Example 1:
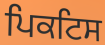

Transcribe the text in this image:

ਪਿਕਟਿਸ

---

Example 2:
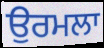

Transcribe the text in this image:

ਉਰਮਲਾ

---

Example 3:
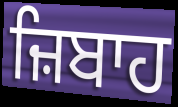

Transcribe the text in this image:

ਜ਼ਿਬਾਹ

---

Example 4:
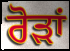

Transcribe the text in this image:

ਰੋੜਾਂ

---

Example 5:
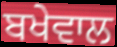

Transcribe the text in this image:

ਬਖੇਵਾਲ